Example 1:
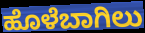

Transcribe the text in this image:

ಹೊಳೆಬಾಗಿಲು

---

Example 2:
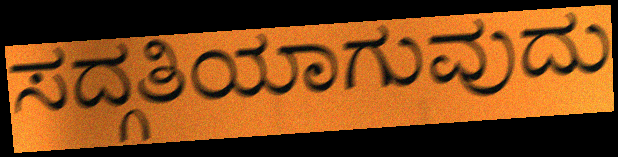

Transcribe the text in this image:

ಸದ್ಗತಿಯಾಗುವುದು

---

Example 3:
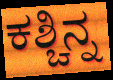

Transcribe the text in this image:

ಕಶ್ಚಿನ್ನ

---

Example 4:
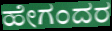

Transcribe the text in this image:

ಹೇಗಂದರ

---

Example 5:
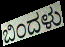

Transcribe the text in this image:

ಬಿಂದಳು